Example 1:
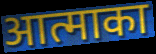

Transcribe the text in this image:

आत्माका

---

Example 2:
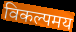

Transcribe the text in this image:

विकल्पमय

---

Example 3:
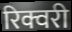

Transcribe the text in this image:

रिक्वरी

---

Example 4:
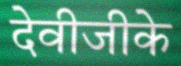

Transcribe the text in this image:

देवीजीके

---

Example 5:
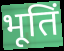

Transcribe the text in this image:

भूतिं